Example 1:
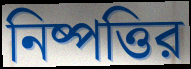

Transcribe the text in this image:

নিষ্পত্তির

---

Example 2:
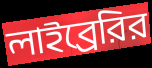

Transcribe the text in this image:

লাইব্রেরির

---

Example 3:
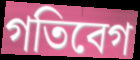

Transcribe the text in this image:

গতিবেগ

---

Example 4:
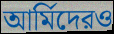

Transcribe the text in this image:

আর্মিদেরও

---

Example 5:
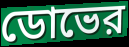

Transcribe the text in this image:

ডোভের